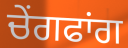
ਚੇਂਗਫਾਂਗ